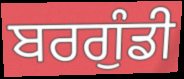
ਬਰਗੁੰਡੀ